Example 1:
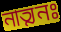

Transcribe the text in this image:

নাত্মনঃ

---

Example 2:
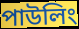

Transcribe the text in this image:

পাউলিং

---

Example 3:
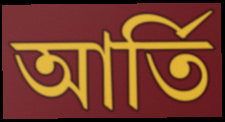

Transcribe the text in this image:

আর্তি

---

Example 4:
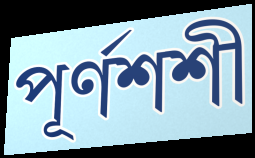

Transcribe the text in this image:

পূর্ণশশী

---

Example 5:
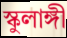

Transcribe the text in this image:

স্কুলাঙ্গী